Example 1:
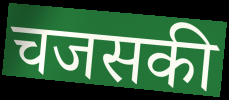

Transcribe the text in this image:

चजसकी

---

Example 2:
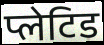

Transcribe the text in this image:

प्लेटिड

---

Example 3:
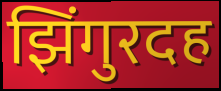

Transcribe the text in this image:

झिंगुरदह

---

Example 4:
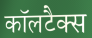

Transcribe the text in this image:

कॉलटैक्स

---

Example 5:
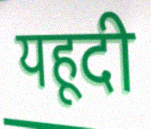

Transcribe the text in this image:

यहूदी